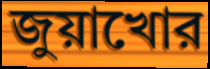
জুয়াখোর